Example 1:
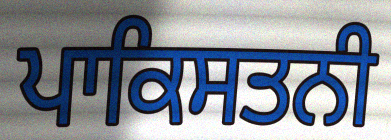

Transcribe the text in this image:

ਪਾਕਿਸਤਨੀ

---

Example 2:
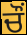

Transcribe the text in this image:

ਚੌਂ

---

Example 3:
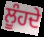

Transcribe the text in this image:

ਲੂੰਹਦੇ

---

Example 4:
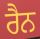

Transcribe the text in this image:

ਰੈਨ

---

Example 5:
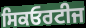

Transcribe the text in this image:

ਸਿਕਓਰਟੀਜ